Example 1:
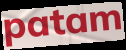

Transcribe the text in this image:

patam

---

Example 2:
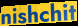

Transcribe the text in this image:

nishchit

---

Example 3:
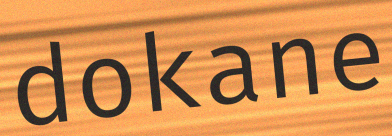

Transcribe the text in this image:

dokane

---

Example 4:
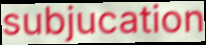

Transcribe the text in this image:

subjucation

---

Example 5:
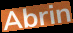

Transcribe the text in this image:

Abrin